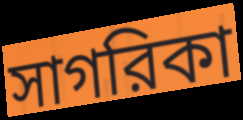
সাগরিকা